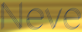
Neve